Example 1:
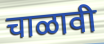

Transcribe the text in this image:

चाळावी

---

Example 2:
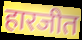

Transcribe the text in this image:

हारजीत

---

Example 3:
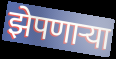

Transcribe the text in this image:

झेपणार्‍या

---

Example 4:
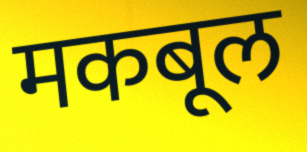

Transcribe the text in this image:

मकबूल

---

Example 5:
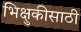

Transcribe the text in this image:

भिक्षुकीसाठी